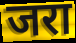
जरा